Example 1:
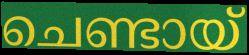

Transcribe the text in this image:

ചെണ്ടായ്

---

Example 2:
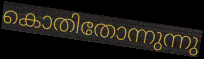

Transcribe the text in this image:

കൊതിതോന്നുന്നു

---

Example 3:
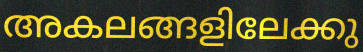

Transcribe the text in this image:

അകലങ്ങളിലേക്കു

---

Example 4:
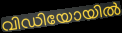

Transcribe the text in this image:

വിഡിയോയിൽ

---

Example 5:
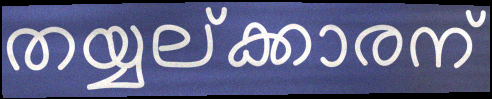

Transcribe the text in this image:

തയ്യല്ക്കാരന്